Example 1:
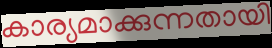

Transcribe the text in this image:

കാര്യമാക്കുന്നതായി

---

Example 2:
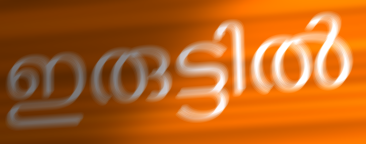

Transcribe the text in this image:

ഇരുട്ടിൽ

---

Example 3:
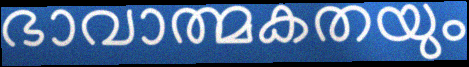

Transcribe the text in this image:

ഭാവാത്മകതയും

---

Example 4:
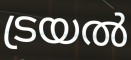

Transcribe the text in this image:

ട്രയൽ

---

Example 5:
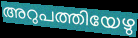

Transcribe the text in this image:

അറുപത്തിയേഴു